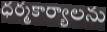
ధర్మకార్యాలను